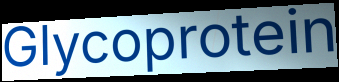
Glycoprotein